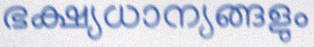
ഭക്ഷ്യധാന്യങ്ങളും